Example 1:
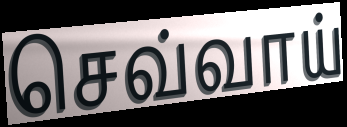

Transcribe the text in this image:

செவ்வாய்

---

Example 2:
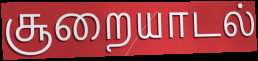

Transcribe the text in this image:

சூறையாடல்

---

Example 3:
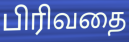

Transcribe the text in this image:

பிரிவதை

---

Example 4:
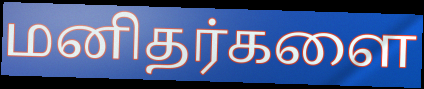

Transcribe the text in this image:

மனிதர்களை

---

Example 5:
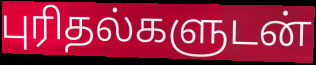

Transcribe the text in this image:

புரிதல்களுடன்